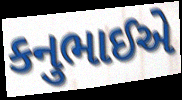
કનુભાઈએ